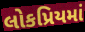
લોકપ્રિયમાં